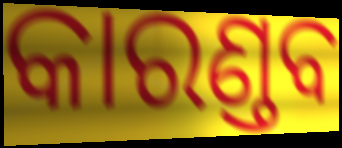
କାରଣ୍ଡବ